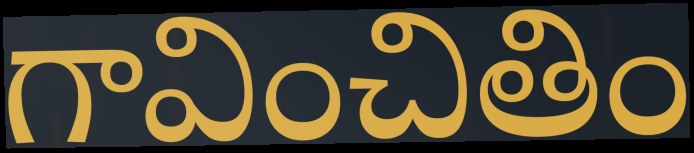
గావించితిం